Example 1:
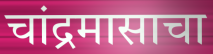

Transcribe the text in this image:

चांद्रमासाचा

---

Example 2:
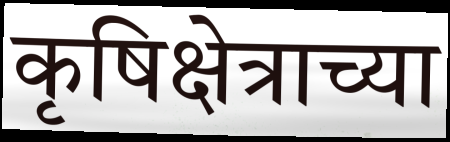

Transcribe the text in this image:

कृषिक्षेत्राच्या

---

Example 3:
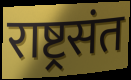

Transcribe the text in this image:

राष्ट्रसंत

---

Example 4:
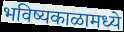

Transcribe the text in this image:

भविष्यकाळामध्ये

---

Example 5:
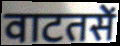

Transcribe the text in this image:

वाटतसें